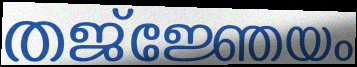
തജ്ജ്ഞേയം